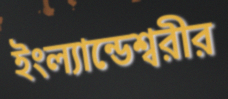
ইংল্যান্ডেশ্বরীর